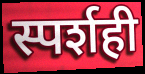
स्पर्शही